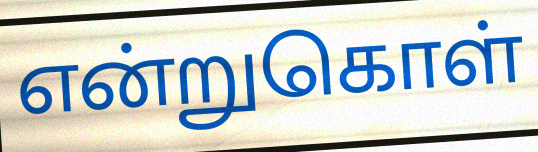
என்றுகொள்